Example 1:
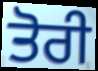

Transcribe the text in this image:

ਤੋਰੀ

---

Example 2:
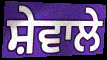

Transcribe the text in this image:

ਸ਼ੇਵਾਲੇ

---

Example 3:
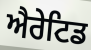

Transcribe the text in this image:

ਐਰੇਟਿਡ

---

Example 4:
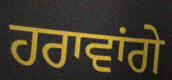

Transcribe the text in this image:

ਹਰਾਵਾਂਗੇ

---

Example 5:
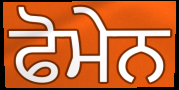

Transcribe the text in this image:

ਫੋਮੇਨ